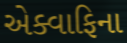
એક્વાફિના